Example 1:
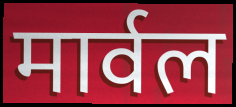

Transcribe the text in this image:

मार्वल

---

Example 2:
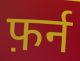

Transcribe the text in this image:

फ़र्न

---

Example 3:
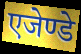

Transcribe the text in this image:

एजेण्डे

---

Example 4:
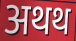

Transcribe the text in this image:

अथथ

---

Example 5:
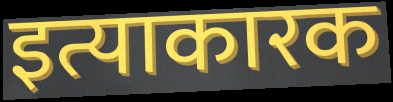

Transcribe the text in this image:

इत्याकारक